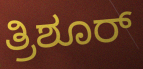
ತ್ರಿಶೂರ್